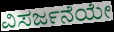
ವಿಸರ್ಜನೆಯೇ